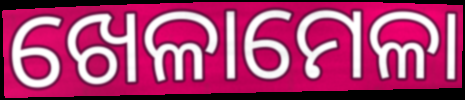
ଖେଳାମେଳା